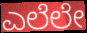
ಎಲೆಲೇ